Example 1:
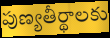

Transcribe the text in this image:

పుణ్యతీర్థాలకు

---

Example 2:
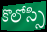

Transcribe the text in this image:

కొలోస్సి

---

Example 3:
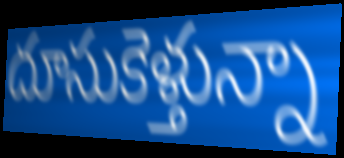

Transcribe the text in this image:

దూసుకెళ్తున్నా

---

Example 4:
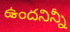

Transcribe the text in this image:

ఉందనిన్నీ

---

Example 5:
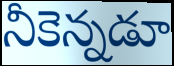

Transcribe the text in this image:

నీకెన్నడూ